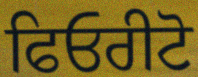
ਫਿਓਰੀਟੋ